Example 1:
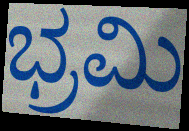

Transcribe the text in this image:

ಭ್ರಮಿ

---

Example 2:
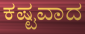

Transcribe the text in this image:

ಕಷ್ಟವಾದ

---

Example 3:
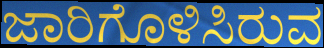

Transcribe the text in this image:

ಜಾರಿಗೊಳಿಸಿರುವ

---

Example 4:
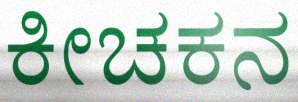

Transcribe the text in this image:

ಕೀಚಕನ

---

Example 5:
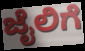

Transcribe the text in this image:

ಜೈಲಿಗೆ